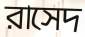
রাসেদ